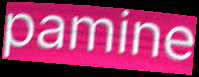
pamine